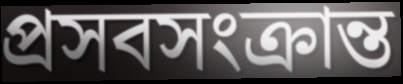
প্রসবসংক্রান্ত